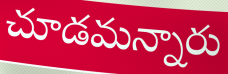
చూడమన్నారు